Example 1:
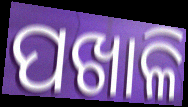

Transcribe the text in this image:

ପଖାଳି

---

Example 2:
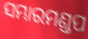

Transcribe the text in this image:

ସମ୍ଭାରମଣ୍ଡପ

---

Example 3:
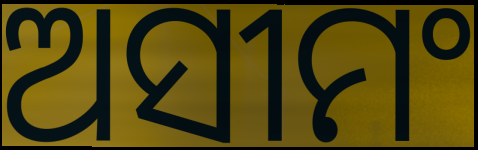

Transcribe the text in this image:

ଅସୀମଂ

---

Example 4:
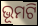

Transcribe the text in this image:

ଭୂମଟି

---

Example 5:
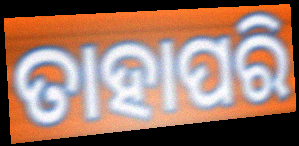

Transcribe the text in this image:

ତାହାପରି